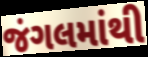
જંગલમાંથી